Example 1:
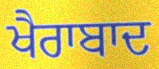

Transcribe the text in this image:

ਖੈਰਾਬਾਦ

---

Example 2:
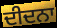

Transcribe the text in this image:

ਦੀਦਨਾ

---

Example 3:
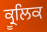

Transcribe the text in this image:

ਕ੍ਰੂਲਿਕ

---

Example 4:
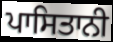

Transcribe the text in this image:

ਪਾਸਿਤਾਨੀ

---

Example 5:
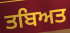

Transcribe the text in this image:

ਤਬਿਅਤ